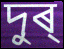
দুৰ্